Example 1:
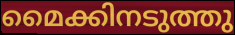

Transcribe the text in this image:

മൈക്കിനടുത്തു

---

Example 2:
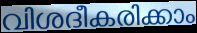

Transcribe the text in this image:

വിശദീകരിക്കാം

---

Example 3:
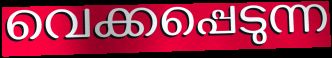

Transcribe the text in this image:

വെക്കപ്പെടുന്ന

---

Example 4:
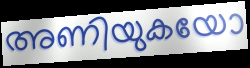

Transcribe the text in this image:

അണിയുകയോ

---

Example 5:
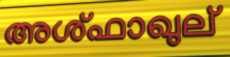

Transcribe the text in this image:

അശ്ഫാഖുല്